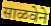
साळवेने